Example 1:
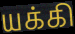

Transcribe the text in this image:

யக்கி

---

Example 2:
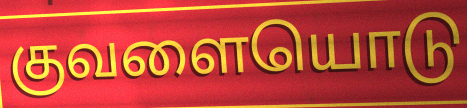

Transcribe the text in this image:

குவளையொடு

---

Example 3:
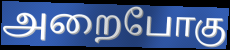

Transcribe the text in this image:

அறைபோகு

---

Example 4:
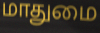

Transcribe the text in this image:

மாதுமை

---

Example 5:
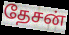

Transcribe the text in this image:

தேசன்